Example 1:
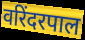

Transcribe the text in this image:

वरिंदरपाल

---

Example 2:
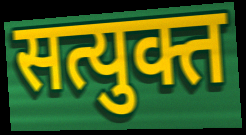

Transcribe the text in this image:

सत्युक्त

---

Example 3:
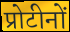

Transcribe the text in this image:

प्रोटीनों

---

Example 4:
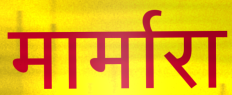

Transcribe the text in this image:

मार्मारा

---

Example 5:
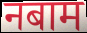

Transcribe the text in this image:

नबाम